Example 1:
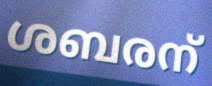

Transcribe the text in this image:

ശബരന്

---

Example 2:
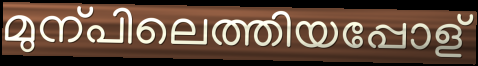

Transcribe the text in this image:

മുന്പിലെത്തിയപ്പോള്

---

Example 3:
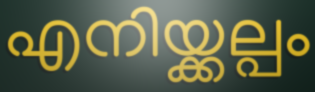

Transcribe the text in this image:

എനിയ്ക്കല്പം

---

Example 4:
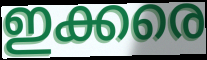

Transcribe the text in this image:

ഇക്കരെ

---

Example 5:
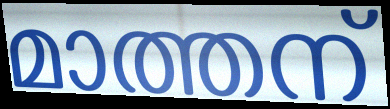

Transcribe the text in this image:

മാത്തന്